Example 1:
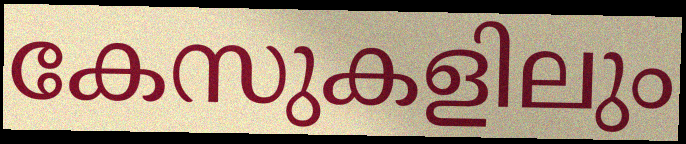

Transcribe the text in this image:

കേസുകളിലും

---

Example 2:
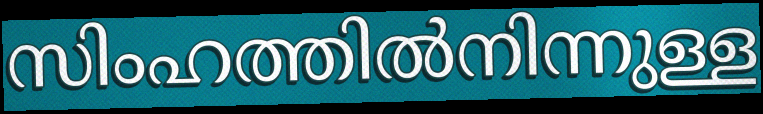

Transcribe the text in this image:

സിംഹത്തിൽനിന്നുള്ള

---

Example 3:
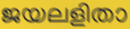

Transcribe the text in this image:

ജയലളിതാ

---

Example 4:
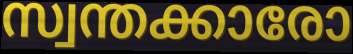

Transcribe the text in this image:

സ്വന്തക്കാരോ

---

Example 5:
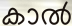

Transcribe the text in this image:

കാൽ